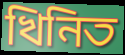
খিনিত